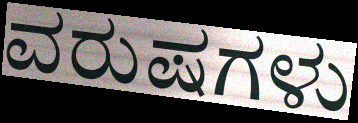
ವರುಷಗಳು